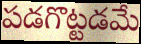
పడగొట్టడమే